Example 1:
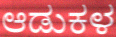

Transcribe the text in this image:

ಆಡುಕಳ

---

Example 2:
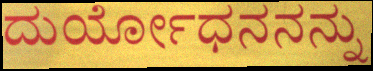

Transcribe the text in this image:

ದುರ್ಯೋಧನನನ್ನು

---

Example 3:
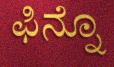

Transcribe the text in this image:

ಫಿನ್ನೊ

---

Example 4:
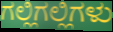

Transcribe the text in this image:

ಗಲ್ಲಿಗಲ್ಲಿಗಳು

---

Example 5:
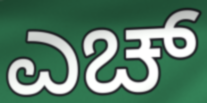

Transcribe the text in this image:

ಎಚ್